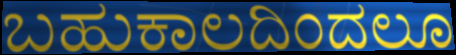
ಬಹುಕಾಲದಿಂದಲೂ